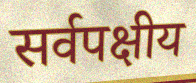
सर्वपक्षीय